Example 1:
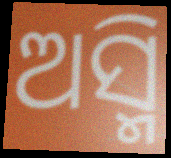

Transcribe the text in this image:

ଅସ୍ମି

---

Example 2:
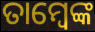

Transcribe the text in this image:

ତାମ୍ବେଙ୍କ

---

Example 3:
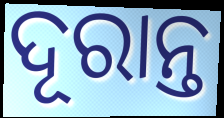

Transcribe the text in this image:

ଦୂରାନ୍ତ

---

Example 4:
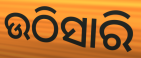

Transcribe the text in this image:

ଉଠିସାରି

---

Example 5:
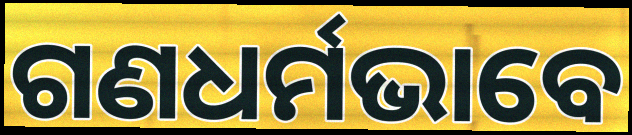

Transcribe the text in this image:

ଗଣଧର୍ମଭାବେ